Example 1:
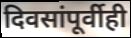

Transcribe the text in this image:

दिवसांपूर्वीही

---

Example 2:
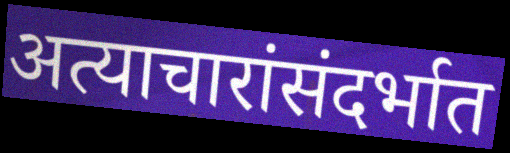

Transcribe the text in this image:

अत्याचारांसंदर्भात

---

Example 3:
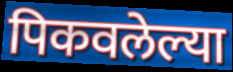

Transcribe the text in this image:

पिकवलेल्या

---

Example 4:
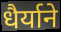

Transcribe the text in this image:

धैर्याने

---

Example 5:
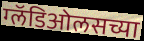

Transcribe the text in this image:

ग्लॅडिओलसच्या